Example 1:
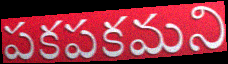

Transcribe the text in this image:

పకపకమని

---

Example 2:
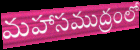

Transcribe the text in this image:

మహాసముద్రంలో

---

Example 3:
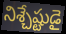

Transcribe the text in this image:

నిశ్చేష్టుడై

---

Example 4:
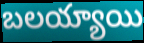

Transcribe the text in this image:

బలయ్యాయి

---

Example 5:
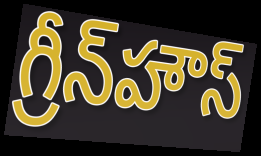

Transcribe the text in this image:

గ్రీన్‌హౌస్